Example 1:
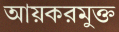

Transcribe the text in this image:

আয়করমুক্ত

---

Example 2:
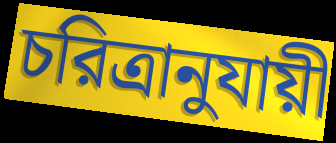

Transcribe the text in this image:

চরিত্রানুযায়ী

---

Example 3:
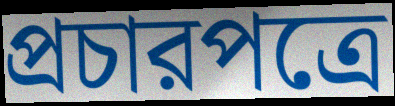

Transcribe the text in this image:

প্রচারপত্রে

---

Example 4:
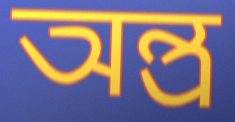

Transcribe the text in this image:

অন্ত্র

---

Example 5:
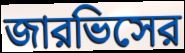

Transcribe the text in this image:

জারভিসের